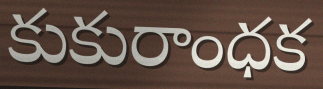
కుకురాంధక